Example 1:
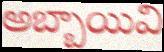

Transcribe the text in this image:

అబ్బాయివి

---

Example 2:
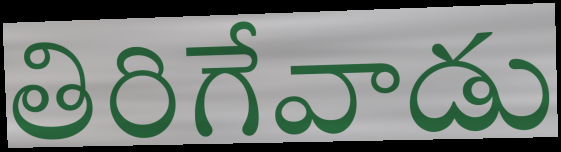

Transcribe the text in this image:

తిరిగేవాడు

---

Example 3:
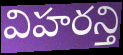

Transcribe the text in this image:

విహరన్తి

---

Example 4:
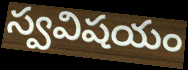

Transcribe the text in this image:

స్వవిషయం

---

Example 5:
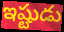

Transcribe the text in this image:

ఇష్టుడు